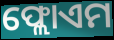
ଫ୍ଲୋଏମ